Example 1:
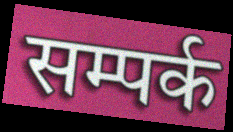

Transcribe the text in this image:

सम्पर्क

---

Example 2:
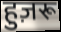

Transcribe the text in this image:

हुज़रू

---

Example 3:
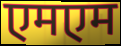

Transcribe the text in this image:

एमएम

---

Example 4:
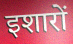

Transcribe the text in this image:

इशारों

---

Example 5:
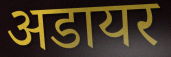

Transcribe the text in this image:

अडायर